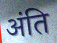
अंति